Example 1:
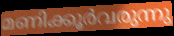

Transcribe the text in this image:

മണിക്കൂർവരുന്നു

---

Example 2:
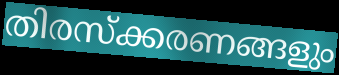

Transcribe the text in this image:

തിരസ്ക്കരണങ്ങളും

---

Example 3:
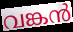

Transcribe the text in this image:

വങ്കൻ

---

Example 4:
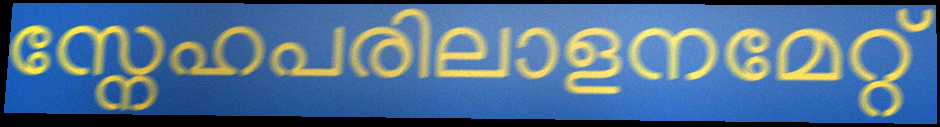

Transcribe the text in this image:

സ്നേഹപരിലാളനമേറ്റ്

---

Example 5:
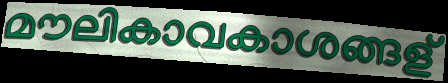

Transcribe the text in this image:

മൗലികാവകാശങ്ങള്